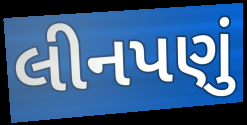
લીનપણું